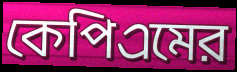
কেপিএমের